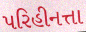
પરિહીનત્તા